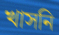
খাসনি